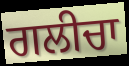
ਗਲੀਚਾ